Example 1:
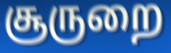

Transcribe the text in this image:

சூருறை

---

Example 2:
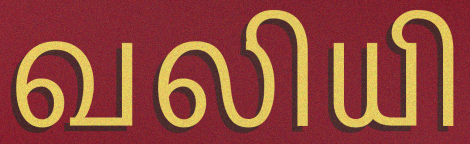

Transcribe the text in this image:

வலியி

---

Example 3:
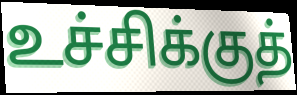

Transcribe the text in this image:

உச்சிக்குத்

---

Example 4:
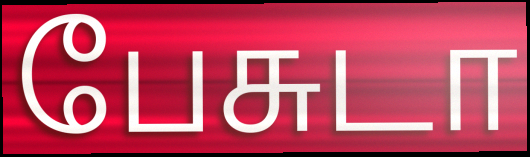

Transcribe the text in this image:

பேசுடா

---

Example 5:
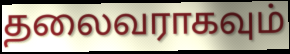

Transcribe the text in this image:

தலைவராகவும்